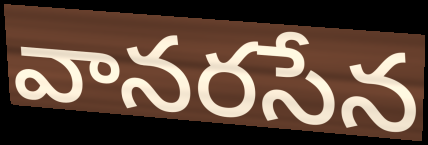
వానరసేన